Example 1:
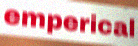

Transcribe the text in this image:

emperical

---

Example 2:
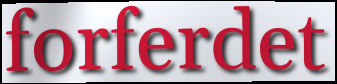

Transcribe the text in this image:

forferdet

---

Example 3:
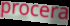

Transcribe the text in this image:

procera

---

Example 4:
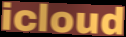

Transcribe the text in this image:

icloud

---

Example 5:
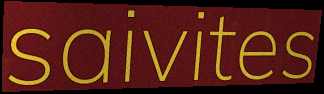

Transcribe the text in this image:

saivites